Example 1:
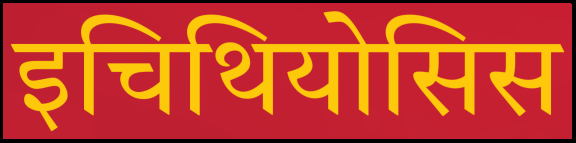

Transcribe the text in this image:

इचिथियोसिस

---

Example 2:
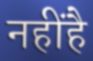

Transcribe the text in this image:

नहींहै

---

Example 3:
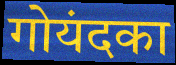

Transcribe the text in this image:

गोयंदका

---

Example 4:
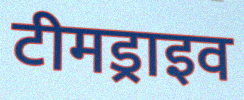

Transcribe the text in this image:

टीमड्राइव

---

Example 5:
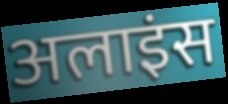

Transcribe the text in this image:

अलाइंस